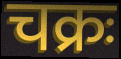
चक्रः